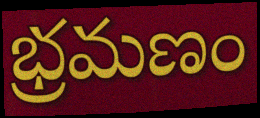
భ్రమణం